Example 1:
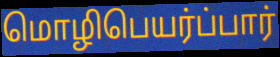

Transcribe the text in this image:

மொழிபெயர்ப்பார்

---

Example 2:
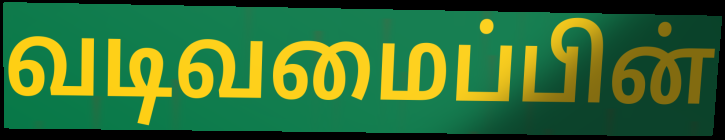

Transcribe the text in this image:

வடிவமைப்பின்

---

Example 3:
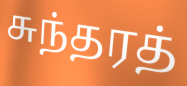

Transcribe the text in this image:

சுந்தரத்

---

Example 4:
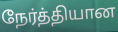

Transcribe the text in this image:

நேர்த்தியான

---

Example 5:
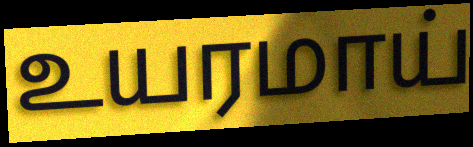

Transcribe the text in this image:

உயரமாய்